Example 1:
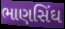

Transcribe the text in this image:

ભાણસિંઘ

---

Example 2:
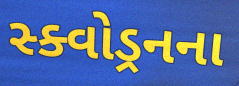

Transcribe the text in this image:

સ્ક્વોડ્રનના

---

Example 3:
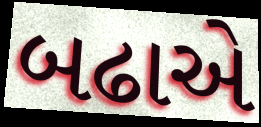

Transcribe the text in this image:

બઢાએ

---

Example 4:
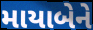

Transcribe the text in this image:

માયાબેને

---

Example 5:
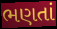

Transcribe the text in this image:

ભણતાં